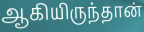
ஆகியிருந்தான்